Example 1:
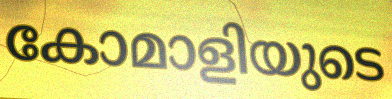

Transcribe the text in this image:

കോമാളിയുടെ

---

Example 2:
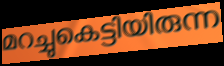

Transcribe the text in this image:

മറച്ചുകെട്ടിയിരുന്ന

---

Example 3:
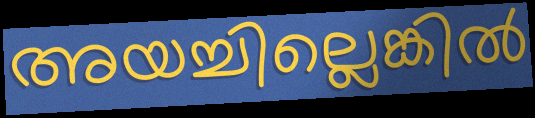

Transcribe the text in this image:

അയച്ചില്ലെങ്കിൽ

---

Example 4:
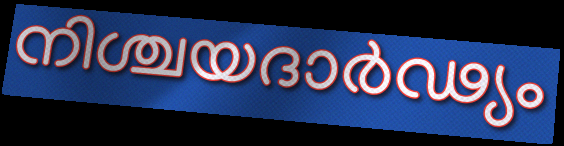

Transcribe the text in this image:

നിശ്ചയദാർഢ്യം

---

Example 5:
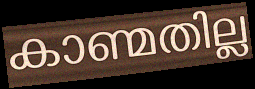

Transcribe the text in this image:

കാണ്മതില്ല